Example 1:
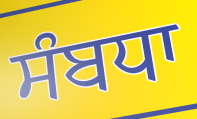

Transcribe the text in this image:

ਸੰਬਧਾ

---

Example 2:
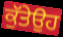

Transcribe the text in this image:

ਕੁੱਤੇਉਹ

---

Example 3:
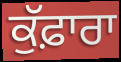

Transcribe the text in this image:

ਕੁੱਫ਼ਾਰਾ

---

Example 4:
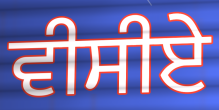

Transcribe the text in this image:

ਵੀਸੀਏ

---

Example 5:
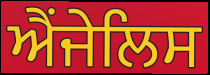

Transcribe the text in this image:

ਐਂਜੇਲਿਸ